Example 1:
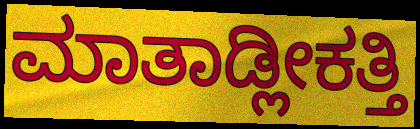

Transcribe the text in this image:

ಮಾತಾಡ್ಲೀಕತ್ತಿ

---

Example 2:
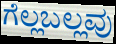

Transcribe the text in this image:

ಗೆಲ್ಲಬಲ್ಲವು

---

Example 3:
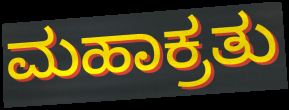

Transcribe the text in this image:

ಮಹಾಕ್ರತು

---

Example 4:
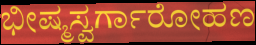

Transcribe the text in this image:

ಭೀಷ್ಮಸ್ವರ್ಗಾರೋಹಣ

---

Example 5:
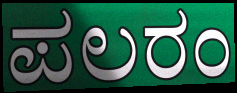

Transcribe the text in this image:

ಪಲರಂ